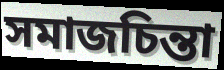
সমাজচিন্তা